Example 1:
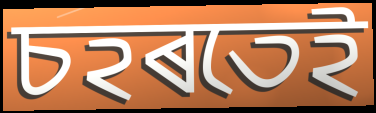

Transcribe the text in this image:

চহৰতেই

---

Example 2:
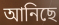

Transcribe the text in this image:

আনিছে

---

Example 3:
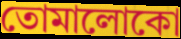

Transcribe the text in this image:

তোমালোকো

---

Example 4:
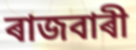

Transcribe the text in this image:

ৰাজবাৰী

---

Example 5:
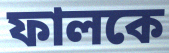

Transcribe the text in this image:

ফালকে